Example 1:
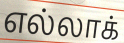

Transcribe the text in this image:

எல்லாக்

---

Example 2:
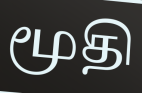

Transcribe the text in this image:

மூதி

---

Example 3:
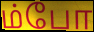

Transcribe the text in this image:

ம்போ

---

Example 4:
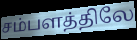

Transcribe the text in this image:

சம்பளத்திலே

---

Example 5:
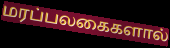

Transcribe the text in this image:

மரப்பலகைகளால்